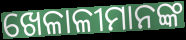
ଖେଳାଳୀମାନଙ୍କ